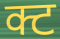
क्ट